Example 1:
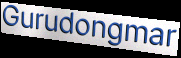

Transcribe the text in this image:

Gurudongmar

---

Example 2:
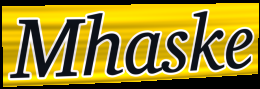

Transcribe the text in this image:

Mhaske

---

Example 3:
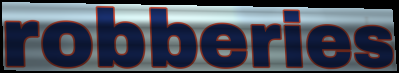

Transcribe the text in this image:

robberies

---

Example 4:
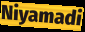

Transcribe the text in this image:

Niyamadi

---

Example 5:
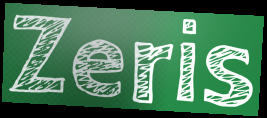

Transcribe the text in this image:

Zeris